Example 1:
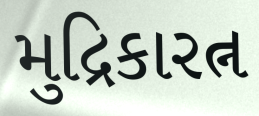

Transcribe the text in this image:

મુદ્રિકારત્ન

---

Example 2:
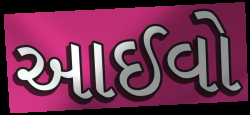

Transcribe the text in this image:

આઈવો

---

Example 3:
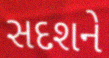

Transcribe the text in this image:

સદશને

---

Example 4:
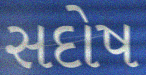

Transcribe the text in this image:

સદોષ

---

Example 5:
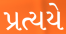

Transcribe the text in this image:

પ્રત્યયે